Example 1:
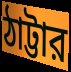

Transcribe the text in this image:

ঠাট্টার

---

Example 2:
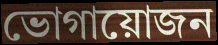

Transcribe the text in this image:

ভোগায়োজন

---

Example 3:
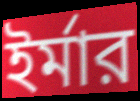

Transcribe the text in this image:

ইর্মার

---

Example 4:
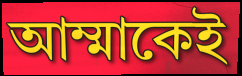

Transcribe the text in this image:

আম্মাকেই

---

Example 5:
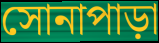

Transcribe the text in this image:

সোনাপাড়া